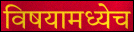
विषयामध्येच